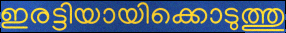
ഇരട്ടിയായിക്കൊടുത്തു